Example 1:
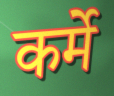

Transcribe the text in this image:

कर्मे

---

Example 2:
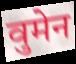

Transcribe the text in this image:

वुमेन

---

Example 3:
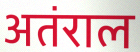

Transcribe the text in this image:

अतंराल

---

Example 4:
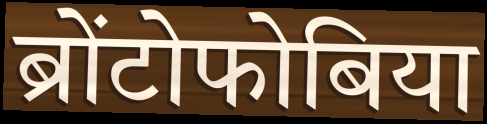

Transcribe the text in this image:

ब्रोंटोफोबिया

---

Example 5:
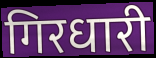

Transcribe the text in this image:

गिरधारी